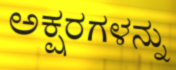
ಅಕ್ಷರಗಳನ್ನು